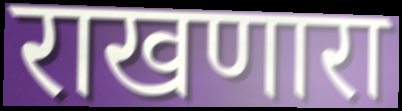
राखणारा